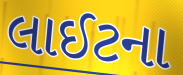
લાઈટના